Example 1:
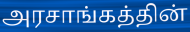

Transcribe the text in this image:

அரசாங்கத்தின்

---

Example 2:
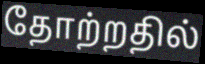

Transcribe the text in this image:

தோற்றதில்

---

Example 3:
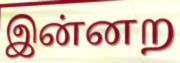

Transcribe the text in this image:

இன்னற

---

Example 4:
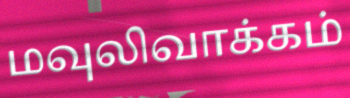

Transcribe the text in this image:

மவுலிவாக்கம்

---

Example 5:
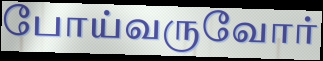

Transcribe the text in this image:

போய்வருவோர்